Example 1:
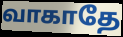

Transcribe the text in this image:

வாகாதே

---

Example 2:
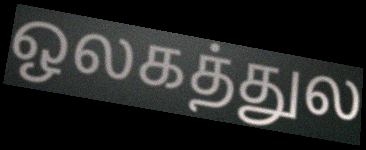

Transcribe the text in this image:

ஒலகத்துல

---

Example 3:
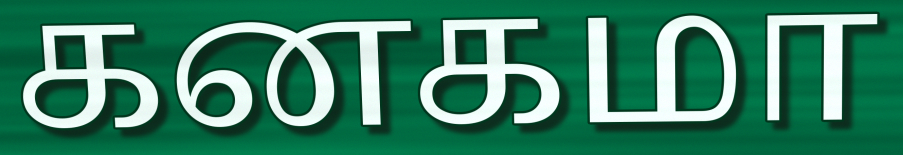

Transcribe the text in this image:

கனகமா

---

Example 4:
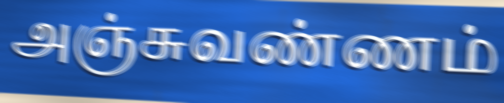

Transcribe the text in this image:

அஞ்சுவண்ணம்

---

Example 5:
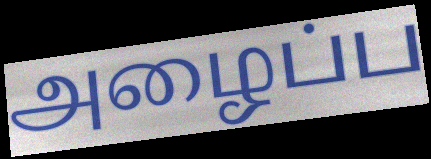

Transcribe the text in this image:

அழைப்ப